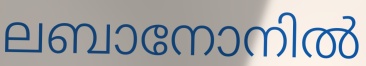
ലബാനോനിൽ